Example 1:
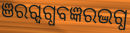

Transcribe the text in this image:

ଞରଗ୍ଦଗ୍ଧବଜ୍ଞରଦ୍ଭଗ୍ଧ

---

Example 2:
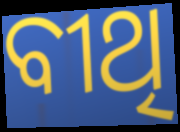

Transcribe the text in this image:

ବୀଥି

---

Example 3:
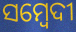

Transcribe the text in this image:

ସମ୍ବେଦୀ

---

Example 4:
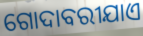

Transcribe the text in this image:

ଗୋଦାବରୀଯାଏ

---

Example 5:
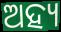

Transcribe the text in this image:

ଅହ୍ୟ